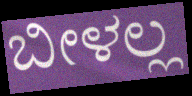
ಬೀಳಲ್ಲ